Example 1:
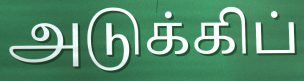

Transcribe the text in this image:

அடுக்கிப்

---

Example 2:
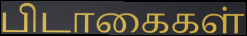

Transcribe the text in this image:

பிடாகைகள்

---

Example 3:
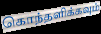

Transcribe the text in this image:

கொந்தளிக்கவும்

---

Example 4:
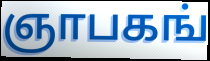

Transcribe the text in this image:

ஞாபகங்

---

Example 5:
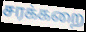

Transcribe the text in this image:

சரக்கறை